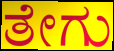
ತೇಗು